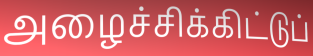
அழைச்சிக்கிட்டுப்